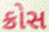
ક્રોસ